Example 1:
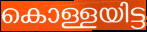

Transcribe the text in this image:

കൊള്ളയിട്ട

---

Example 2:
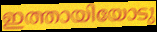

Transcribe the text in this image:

ഇത്തായിയോടു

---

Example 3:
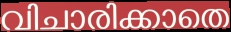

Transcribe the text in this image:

വിചാരിക്കാതെ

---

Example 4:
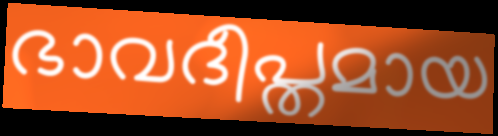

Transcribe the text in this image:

ഭാവദീപ്തമായ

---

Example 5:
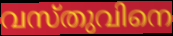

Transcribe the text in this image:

വസ്തുവിനെ